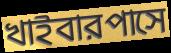
খাইবারপাসে